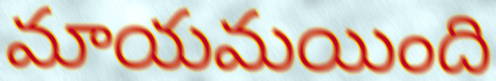
మాయమయింది